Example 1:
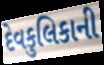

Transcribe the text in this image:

દેવકુલિકાની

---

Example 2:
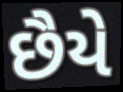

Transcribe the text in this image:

છૈયે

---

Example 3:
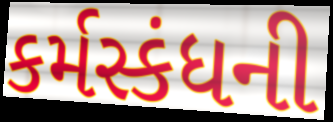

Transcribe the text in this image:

કર્મસ્કંધની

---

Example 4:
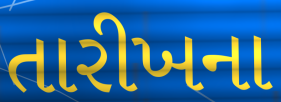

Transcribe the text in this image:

તારીખના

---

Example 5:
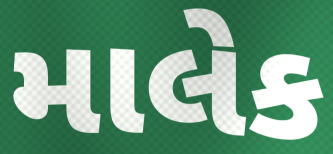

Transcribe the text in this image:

માલેક